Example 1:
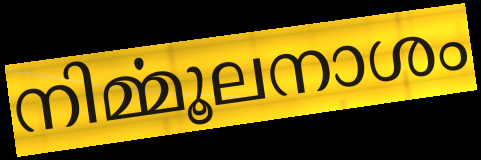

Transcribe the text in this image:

നിൎമ്മൂലനാശം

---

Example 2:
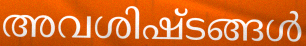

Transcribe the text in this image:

അവശിഷ്ടങ്ങൾ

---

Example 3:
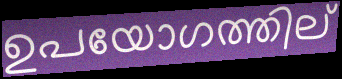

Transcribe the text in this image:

ഉപയോഗത്തില്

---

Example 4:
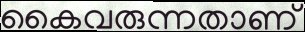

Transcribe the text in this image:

കൈവരുന്നതാണ്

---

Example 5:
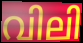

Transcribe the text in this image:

വിലി